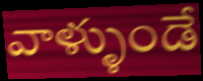
వాళ్ళుండే